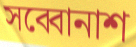
সব্বোনাশ